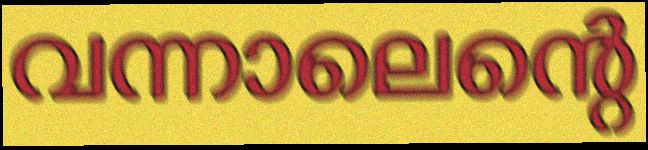
വന്നാലെന്റെ